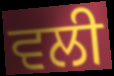
ਵਲੀ